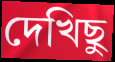
দেখিছু